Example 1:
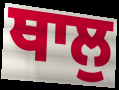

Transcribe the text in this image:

ਥਾਲੁ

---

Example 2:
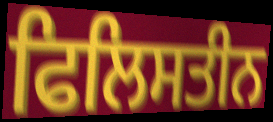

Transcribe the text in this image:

ਫਿਲਿਸਤੀਨ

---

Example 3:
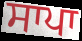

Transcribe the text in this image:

ਸਾਪਾ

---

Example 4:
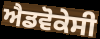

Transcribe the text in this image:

ਐਡਵੋਕੇਸੀ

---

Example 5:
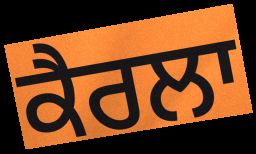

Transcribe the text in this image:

ਕੈਰਲਾ